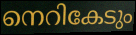
നെറികേടും